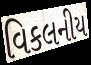
વિકલનીય